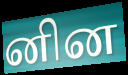
னின